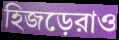
হিজড়েরাও